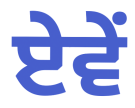
ਏਵੇਂ